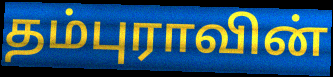
தம்புராவின்